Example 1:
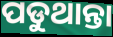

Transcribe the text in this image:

ପଡୁଥାନ୍ତା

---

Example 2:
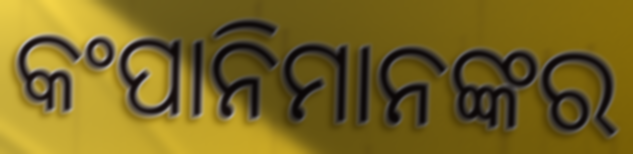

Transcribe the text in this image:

କଂପାନିମାନଙ୍କର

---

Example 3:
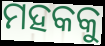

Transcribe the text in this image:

ମହକକୁ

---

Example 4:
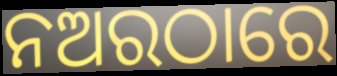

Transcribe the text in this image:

ନଅରଠାରେ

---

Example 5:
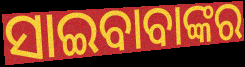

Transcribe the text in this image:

ସାଇବାବାଙ୍କର